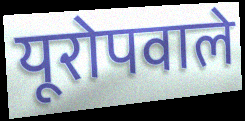
यूरोपवाले